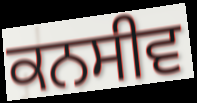
ਕਨਸੀਵ